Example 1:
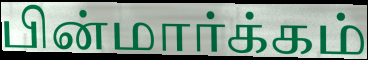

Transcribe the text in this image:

பின்மார்க்கம்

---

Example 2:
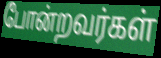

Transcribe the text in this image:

போன்றவர்கள்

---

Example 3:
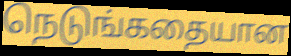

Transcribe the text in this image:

நெடுங்கதையான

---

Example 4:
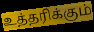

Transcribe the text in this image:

உத்தரிக்கும்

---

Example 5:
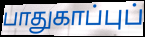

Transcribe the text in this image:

பாதுகாப்புப்